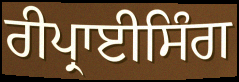
ਰੀਪ੍ਰਾਈਸਿੰਗ